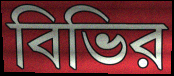
বিভির